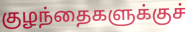
குழந்தைகளுக்குச்